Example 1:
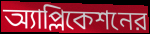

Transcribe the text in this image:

অ্যাপ্লিকেশনের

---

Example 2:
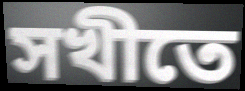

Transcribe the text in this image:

সখীতে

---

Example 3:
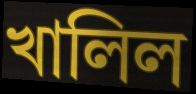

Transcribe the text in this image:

খালিল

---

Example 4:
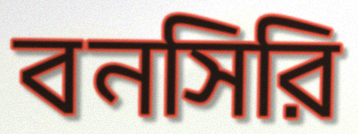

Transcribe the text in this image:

বনসিরি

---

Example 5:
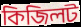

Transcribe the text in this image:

কিজিলট